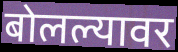
बोलल्यावर